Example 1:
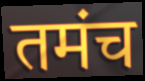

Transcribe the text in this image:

तमंच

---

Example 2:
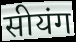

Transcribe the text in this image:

सीयंग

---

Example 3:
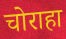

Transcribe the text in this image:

चोराहा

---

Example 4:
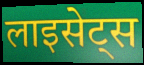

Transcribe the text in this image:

लाइसेट्स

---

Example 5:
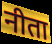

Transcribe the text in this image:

नीता